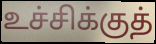
உச்சிக்குத்